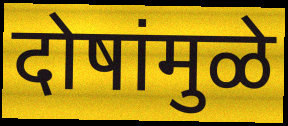
दोषांमुळे